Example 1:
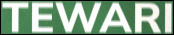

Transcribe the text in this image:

TEWARI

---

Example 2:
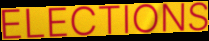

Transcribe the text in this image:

ELECTIONS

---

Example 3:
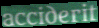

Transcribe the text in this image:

acciderit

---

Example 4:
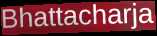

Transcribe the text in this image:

Bhattacharja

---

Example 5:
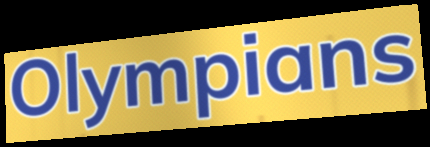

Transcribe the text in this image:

Olympians